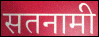
सतनामी